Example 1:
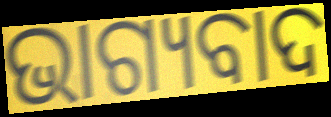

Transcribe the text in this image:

ଭାଗ୍ୟବାଦ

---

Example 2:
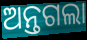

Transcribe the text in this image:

ଅନ୍ତଗଲା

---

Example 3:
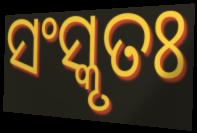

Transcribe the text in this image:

ସଂସ୍କୃତଃ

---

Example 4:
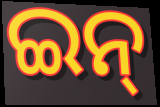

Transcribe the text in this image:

ଇନ୍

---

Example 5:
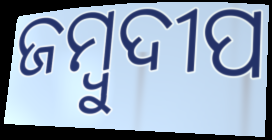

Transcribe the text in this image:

ଜମ୍ବୁଦୀପ